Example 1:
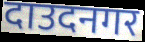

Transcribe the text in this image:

दाउदनगर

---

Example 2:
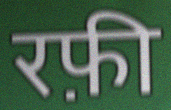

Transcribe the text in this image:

रफ़ी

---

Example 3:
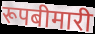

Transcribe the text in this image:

रूपबीमारी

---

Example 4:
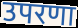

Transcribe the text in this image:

उपरणा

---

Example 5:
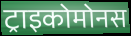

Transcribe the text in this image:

ट्राइकोमोनस